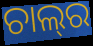
ଚାଲ୍‌ର